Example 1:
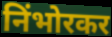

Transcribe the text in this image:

निंभोरकर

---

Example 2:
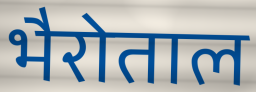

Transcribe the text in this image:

भैरोताल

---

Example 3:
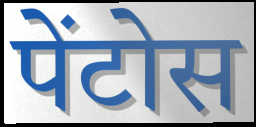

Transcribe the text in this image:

पेंटोस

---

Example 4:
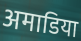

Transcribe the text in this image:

अमाडिया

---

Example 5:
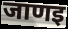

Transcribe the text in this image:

जाणइ